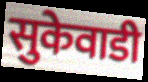
सुकेवाडी